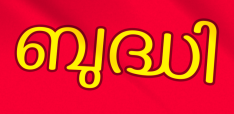
ബുദ്ധി